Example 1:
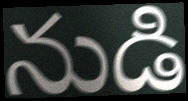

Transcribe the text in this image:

నుడి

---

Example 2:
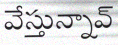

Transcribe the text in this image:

వేస్తున్నావ్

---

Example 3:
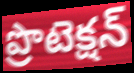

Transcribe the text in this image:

ప్రొటెక్షన్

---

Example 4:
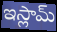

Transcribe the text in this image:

ఇస్లామ్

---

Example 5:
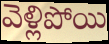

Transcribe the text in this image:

వెళ్లిపోయి